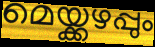
മെയ്ക്കഴപ്പും